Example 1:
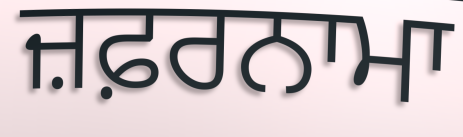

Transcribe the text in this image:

ਜ਼ਫ਼ਰਨਾਮਾ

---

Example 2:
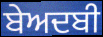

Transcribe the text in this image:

ਬੇਅਦਬੀ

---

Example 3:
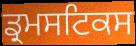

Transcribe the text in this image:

ਡ੍ਰਮਸਟਿਕਸ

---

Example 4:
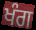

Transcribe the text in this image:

ਖੰਗ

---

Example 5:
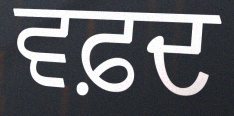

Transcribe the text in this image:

ਵਫ਼ਦ